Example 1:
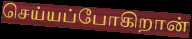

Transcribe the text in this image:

செய்யப்போகிறான்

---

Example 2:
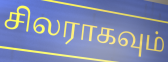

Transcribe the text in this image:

சிலராகவும்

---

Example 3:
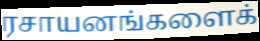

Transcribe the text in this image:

ரசாயனங்களைக்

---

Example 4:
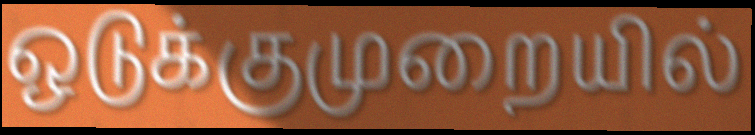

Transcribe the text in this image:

ஒடுக்குமுறையில்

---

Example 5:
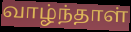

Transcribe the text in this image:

வாழ்ந்தாள்